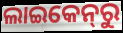
ଲାଇକେନ୍‌ରୁ